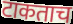
टाकताच